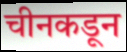
चीनकडून